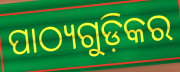
ପାଠ୍ୟଗୁଡ଼ିକର